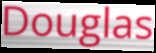
Douglas